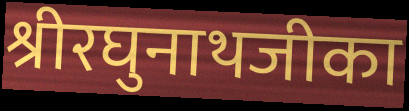
श्रीरघुनाथजीका